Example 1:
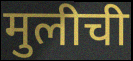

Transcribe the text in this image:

मुलीची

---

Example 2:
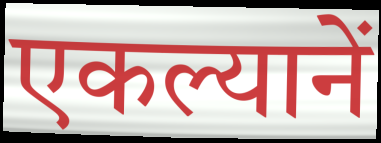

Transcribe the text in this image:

एकल्यानें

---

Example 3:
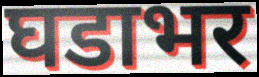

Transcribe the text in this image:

घडाभर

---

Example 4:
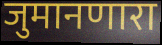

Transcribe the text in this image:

जुमानणारा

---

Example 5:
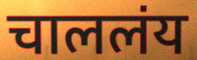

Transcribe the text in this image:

चाललंय